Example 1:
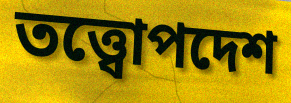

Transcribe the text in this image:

তত্ত্বোপদেশ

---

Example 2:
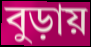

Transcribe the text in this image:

বুড়ায়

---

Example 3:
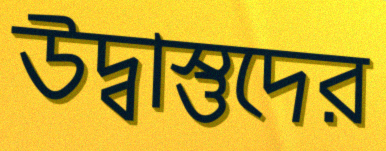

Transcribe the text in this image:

উদ্বাস্তুদের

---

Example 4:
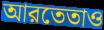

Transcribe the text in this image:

আরতেতাও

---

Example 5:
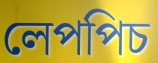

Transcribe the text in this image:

লেপপিচ